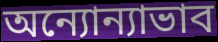
অন্যোন্যাভাব